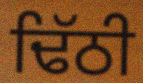
ਢਿੱਠੀ